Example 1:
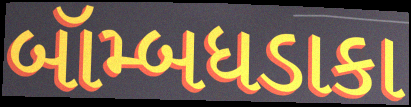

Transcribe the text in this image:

બૉમ્બધડાકા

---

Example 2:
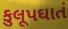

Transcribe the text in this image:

કુલૂપઘાતં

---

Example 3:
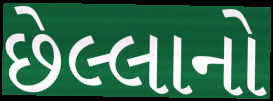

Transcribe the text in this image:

છેલ્લાનો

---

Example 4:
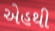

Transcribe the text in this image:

એહથી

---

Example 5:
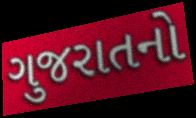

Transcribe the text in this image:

ગુજરાતનો